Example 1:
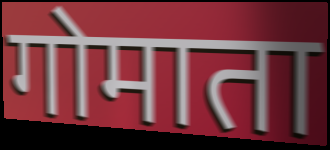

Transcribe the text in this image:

गोमाता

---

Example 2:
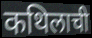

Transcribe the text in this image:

कथिलाची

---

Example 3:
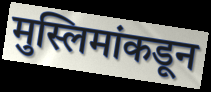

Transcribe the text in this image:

मुस्लिमांकडून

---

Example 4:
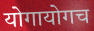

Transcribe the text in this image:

योगायोगच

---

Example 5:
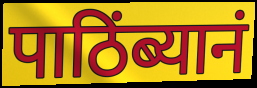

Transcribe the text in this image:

पाठिंब्यानं